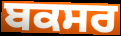
ਬਕਸਰ